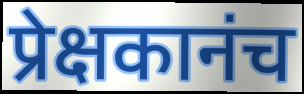
प्रेक्षकानंच